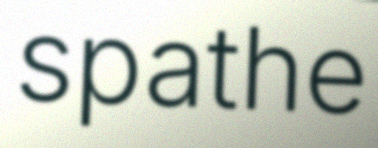
spathe